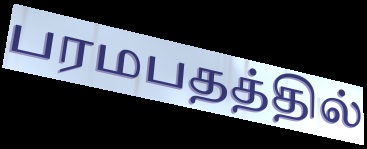
பரமபதத்தில்